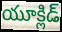
యూక్లిడ్